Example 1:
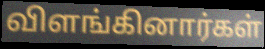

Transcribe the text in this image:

விளங்கினார்கள்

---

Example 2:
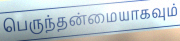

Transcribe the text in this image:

பெருந்தன்மையாகவும்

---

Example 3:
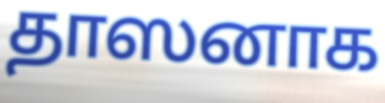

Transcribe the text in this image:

தாஸனாக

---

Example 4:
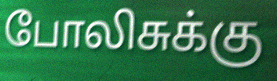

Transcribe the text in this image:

போலிசுக்கு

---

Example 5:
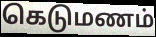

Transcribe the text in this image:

கெடுமணம்